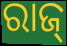
ରାଜ୍